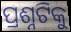
ପ୍ରଶ୍ନଟିକୁ